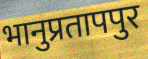
भानुप्रतापपुर